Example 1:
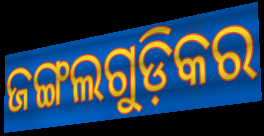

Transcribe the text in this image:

ଜଙ୍ଗଲଗୁଡ଼ିକର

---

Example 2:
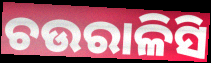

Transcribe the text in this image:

ଚଉରାଳିସି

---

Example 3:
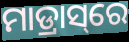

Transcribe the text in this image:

ମାଡ୍ରାସ୍‌ରେ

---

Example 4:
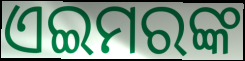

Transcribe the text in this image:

ଏଇମରଙ୍କ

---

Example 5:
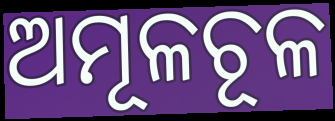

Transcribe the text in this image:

ଅମୂଳଚୂଳ